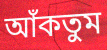
আঁকতুম